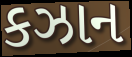
કઝાન